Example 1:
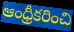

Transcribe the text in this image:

ఆంధ్రీకరించి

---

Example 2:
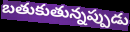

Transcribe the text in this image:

బతుకుతున్నప్పుడు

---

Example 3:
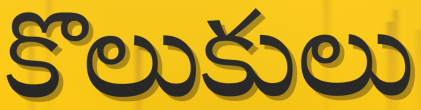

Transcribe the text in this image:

కొలుకులు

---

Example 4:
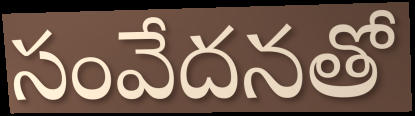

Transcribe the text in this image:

సంవేదనతో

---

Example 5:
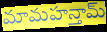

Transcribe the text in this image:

మామహన్తామ్